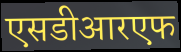
एसडीआरएफ